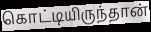
கொட்டியிருந்தான்